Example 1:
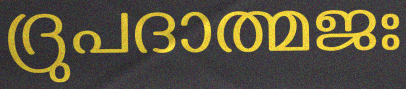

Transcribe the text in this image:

ദ്രുപദാത്മജഃ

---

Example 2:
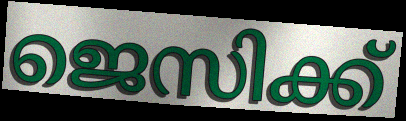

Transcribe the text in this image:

ജെസിക്ക്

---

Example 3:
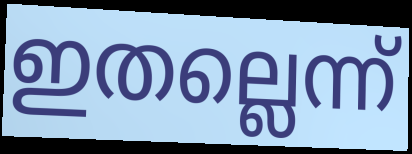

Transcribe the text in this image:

ഇതല്ലെന്ന്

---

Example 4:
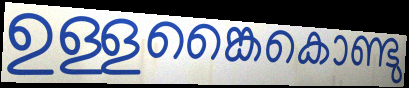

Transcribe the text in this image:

ഉള്ളങ്കൈകൊണ്ടു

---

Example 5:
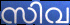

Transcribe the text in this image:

സിവ